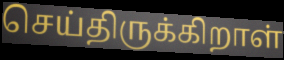
செய்திருக்கிறாள்